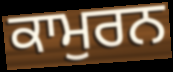
ਕਾਮੁਰਨ